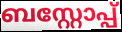
ബസ്റ്റോപ്പ്